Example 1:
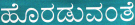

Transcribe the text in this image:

ಹೊರಡುವಂತೆ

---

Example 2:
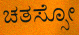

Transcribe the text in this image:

ಚತಸ್ಸೋ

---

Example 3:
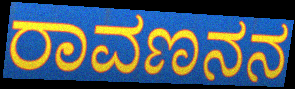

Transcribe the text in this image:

ರಾವಣನನ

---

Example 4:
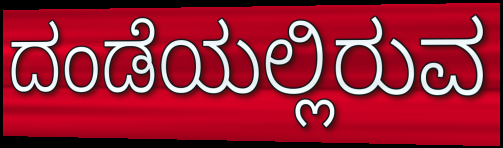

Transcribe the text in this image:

ದಂಡೆಯಲ್ಲಿರುವ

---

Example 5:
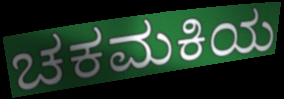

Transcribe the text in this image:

ಚಕಮಕಿಯ